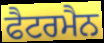
ਫੈਟਰਮੈਨ